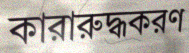
কারারুদ্ধকরণ